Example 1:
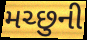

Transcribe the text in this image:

મચ્છુની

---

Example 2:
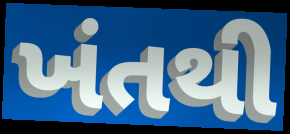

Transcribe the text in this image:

ખંતથી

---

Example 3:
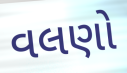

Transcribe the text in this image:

વલણો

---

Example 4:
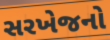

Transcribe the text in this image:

સરખેજનો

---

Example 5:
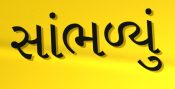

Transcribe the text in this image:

સાંભળ્યું